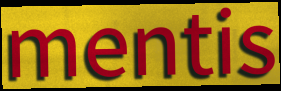
mentis